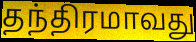
தந்திரமாவது